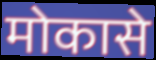
मोकासे